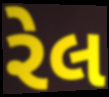
રેલ